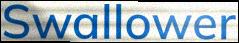
Swallower